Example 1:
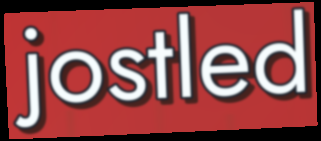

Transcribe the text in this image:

jostled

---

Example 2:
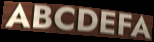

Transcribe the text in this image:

ABCDEFA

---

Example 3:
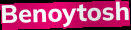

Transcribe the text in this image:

Benoytosh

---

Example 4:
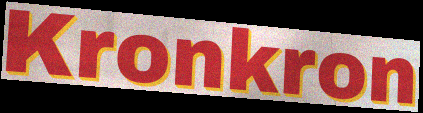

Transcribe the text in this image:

Kronkron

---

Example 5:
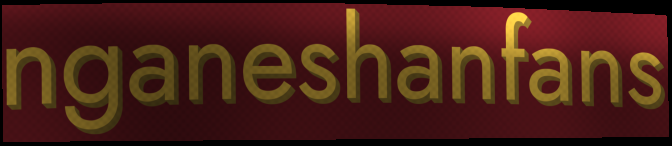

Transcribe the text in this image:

nganeshanfans